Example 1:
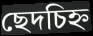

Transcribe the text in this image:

ছেদচিহ্ন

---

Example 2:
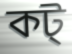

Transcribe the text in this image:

কট্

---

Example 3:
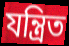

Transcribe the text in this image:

যন্ত্রিত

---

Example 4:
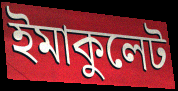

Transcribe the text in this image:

ইমাকুলেট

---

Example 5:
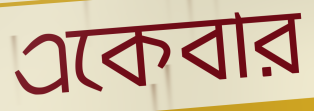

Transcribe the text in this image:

একেবার